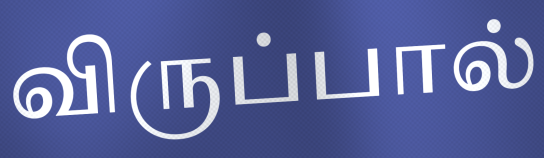
விருப்பால்